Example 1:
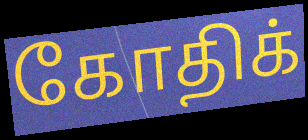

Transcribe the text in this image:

கோதிக்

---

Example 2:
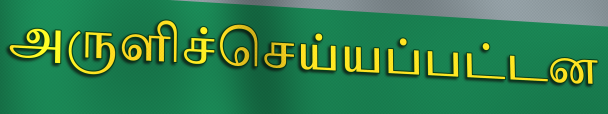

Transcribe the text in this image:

அருளிச்செய்யப்பட்டன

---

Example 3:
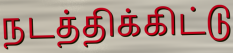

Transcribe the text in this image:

நடத்திக்கிட்டு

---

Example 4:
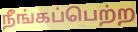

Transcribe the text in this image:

நீங்கப்பெற்ற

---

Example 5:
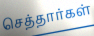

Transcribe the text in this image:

செத்தார்கள்